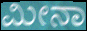
ಮೀನಾ